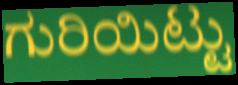
ಗುರಿಯಿಟ್ಟು